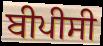
ਬੀਪੀਸੀ